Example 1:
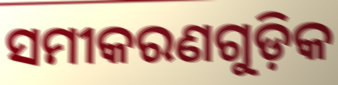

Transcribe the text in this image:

ସମୀକରଣଗୁଡ଼ିକ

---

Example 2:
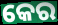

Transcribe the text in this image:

କେର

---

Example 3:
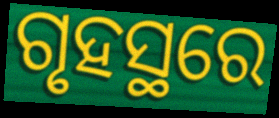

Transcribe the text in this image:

ଗୃହସ୍ଥରେ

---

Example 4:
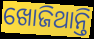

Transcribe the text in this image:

ଖୋଜିଥାନ୍ତି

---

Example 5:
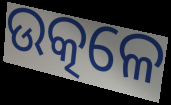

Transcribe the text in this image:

ଉତ୍କଳେ